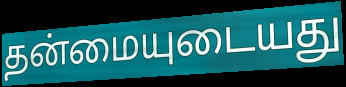
தன்மையுடையது